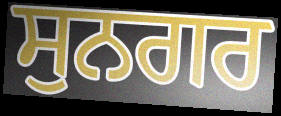
ਸੁਨਗਰ